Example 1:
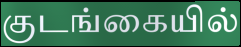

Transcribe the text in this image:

குடங்கையில்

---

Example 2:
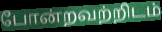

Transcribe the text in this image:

போன்றவற்றிடம்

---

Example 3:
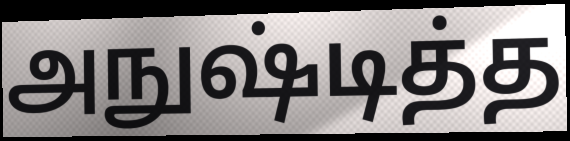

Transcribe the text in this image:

அநுஷ்டித்த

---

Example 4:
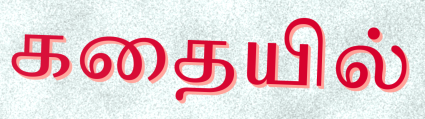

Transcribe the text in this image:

கதையில்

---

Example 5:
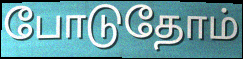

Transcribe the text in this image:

போடுதோம்